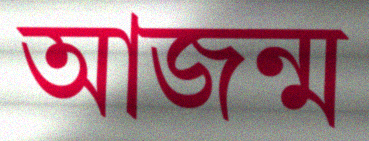
আজন্ম